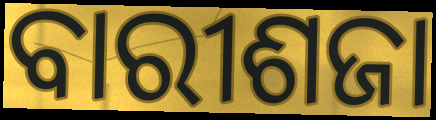
ବାରୀଶଜା